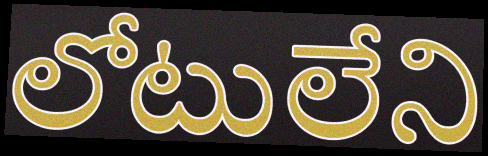
లోటులేని